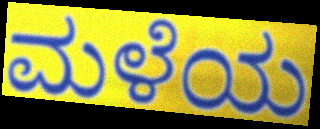
ಮಳೆಯ